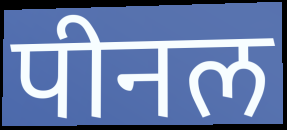
पीनल